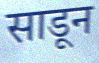
साडून